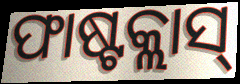
ଫାଷ୍ଟକ୍ଲାସ୍